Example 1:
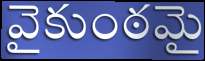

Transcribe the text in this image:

వైకుంఠమై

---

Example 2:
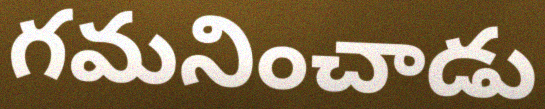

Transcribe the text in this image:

గమనించాడు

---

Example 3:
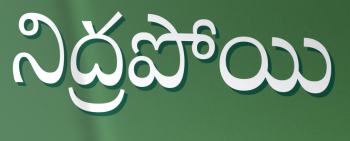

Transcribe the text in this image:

నిద్రపోయి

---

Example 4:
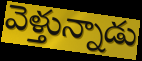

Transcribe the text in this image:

వెళ్తున్నాడు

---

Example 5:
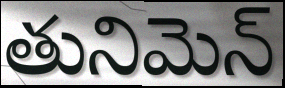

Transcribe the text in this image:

తునిమెన్